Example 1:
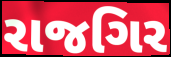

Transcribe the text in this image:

રાજગિર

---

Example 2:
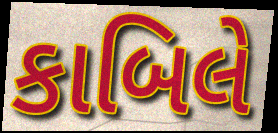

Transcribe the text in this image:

કાબિલે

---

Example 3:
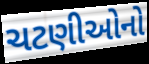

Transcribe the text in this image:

ચટણીઓનો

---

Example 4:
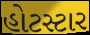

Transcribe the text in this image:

હોટસ્ટાર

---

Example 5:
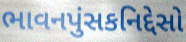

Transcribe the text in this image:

ભાવનપુંસકનિદ્દેસો